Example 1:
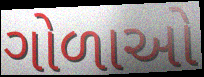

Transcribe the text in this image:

ગોળાઓ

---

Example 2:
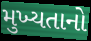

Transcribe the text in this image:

મુખ્યતાનો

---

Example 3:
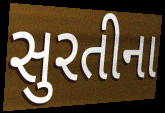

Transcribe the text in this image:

સુરતીના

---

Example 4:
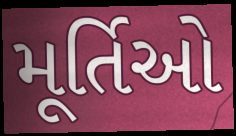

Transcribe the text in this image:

મૂર્તિઓ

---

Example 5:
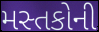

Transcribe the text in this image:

મસ્તકોની